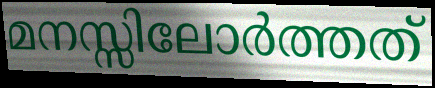
മനസ്സിലോർത്തത്